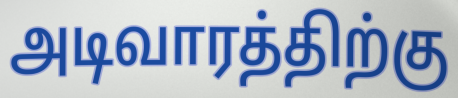
அடிவாரத்திற்கு